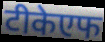
टीकेएफ